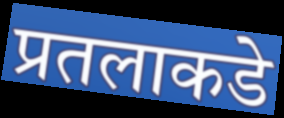
प्रतलाकडे